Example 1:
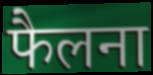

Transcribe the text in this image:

फैलना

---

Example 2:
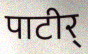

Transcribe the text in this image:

पाटीर्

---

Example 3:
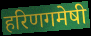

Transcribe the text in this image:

हरिणगमेषी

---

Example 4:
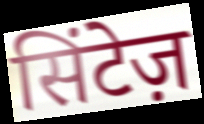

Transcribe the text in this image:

सिंटेज़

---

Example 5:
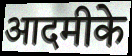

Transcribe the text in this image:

आदमीके